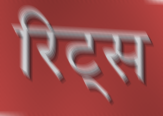
रिट्स